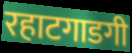
रहाटगाडगी